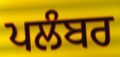
ਪਲੰਬਰ